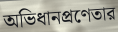
অভিধানপ্রণেতার